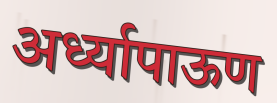
अर्ध्यापाऊण